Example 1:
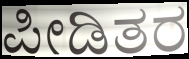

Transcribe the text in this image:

ಪೀಡಿತರ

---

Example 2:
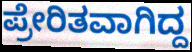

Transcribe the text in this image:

ಪ್ರೇರಿತವಾಗಿದ್ದ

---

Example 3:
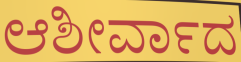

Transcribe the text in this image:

ಆಶೀರ್ವಾದ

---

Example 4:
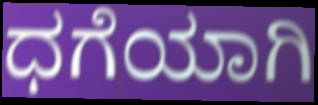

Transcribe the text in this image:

ಧಗೆಯಾಗಿ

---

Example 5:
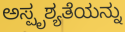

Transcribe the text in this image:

ಅಸ್ಪೃಶ್ಯತೆಯನ್ನು